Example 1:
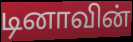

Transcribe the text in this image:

டினாவின்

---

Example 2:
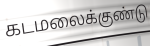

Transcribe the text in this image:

கடமலைக்குண்டு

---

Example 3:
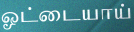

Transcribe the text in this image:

ஓட்டையாய்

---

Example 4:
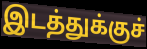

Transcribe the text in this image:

இடத்துக்குச்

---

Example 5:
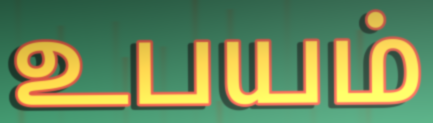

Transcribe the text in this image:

உபயம்